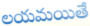
లయమయితే